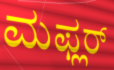
ಮಫ್ಲರ್